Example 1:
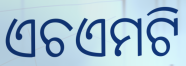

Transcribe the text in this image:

ଏଚଏମଟି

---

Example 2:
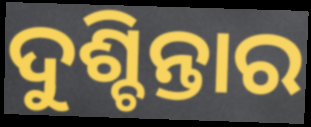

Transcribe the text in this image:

ଦୁଶ୍ଚିନ୍ତାର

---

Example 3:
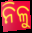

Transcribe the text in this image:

ନିଳୁ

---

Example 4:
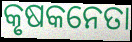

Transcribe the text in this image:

କୃଷକନେତା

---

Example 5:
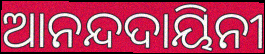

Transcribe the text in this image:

ଆନନ୍ଦଦାୟିନୀ